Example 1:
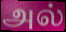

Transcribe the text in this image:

அல்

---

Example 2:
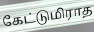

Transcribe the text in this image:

கேட்டுமிராத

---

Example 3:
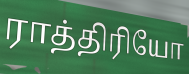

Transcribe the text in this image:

ராத்திரியோ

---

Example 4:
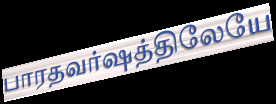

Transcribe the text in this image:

பாரதவர்ஷத்திலேயே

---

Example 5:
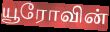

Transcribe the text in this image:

யூரோவின்